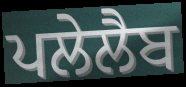
ਪਲੇਲੈਬ